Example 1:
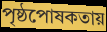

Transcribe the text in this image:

পৃষ্ঠপোষকতায়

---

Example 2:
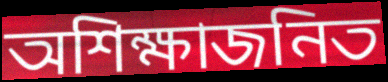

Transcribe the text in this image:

অশিক্ষাজনিত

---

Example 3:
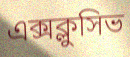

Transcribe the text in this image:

এক্সক্লুসিভ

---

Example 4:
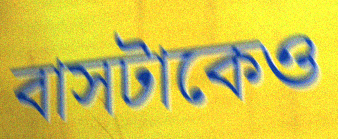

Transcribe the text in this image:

বাসটাকেও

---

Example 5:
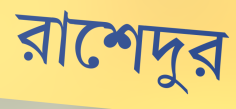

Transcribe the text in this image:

রাশেদুর